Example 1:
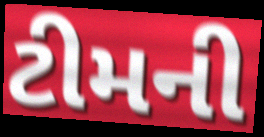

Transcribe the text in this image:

ટીમની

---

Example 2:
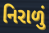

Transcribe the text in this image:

નિરાળું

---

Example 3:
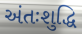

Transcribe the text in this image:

અંતઃશુદ્ધિ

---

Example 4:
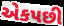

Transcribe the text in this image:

એકપછી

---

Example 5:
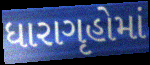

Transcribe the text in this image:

ધારાગૃહોમાં